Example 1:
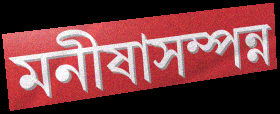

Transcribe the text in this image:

মনীষাসম্পন্ন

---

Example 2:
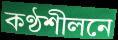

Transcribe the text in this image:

কণ্ঠশীলনে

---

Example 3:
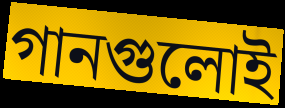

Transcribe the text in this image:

গানগুলোই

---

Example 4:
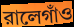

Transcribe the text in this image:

রালেগাঁও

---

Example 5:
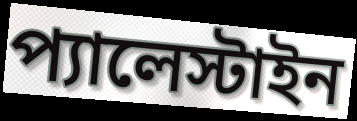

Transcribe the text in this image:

প্যালেস্টাইন